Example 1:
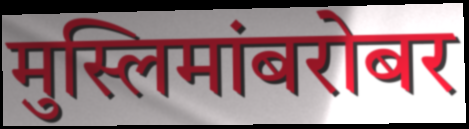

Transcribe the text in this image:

मुस्लिमांबरोबर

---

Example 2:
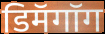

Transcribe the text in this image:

डिमॅगॉग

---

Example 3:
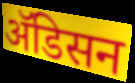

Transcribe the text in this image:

ॲडिसन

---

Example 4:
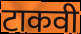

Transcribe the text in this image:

टाकवी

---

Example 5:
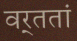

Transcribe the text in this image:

वर्ततां